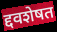
द्दवशेषत